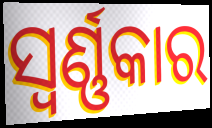
ସ୍ୱର୍ଣ୍ଣକାର